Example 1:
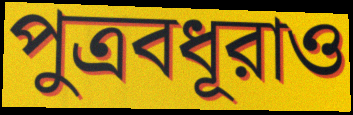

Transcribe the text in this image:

পুত্রবধূরাও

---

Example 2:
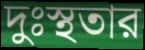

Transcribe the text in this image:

দুঃস্থতার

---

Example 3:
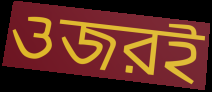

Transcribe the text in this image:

ওজরই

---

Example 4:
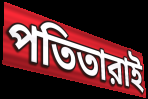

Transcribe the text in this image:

পতিতারাই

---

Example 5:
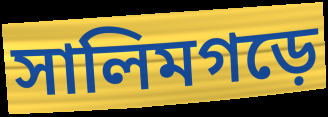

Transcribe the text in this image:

সালিমগড়ে